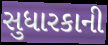
સુધારકાની